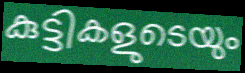
കുട്ടികളുടെയും